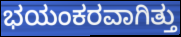
ಭಯಂಕರವಾಗಿತ್ತು